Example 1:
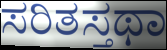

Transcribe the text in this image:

ಸರಿತಸ್ತಥಾ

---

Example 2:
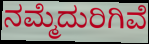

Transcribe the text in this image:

ನಮ್ಮೆದುರಿಗಿವೆ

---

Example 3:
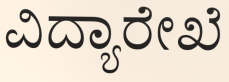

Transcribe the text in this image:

ವಿದ್ಯಾರೇಖೆ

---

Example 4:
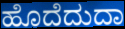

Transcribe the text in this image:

ಹೊದೆದುದಾ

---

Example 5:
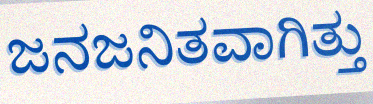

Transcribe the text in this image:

ಜನಜನಿತವಾಗಿತ್ತು